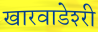
खारवाडेश्री